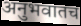
अनुभवातच